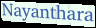
Nayanthara